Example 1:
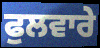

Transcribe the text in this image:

ਫੁਲਵਾਰੇ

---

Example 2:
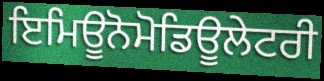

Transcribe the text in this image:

ਇਮਿਊਨੋਮੋਡਿਊਲੇਟਰੀ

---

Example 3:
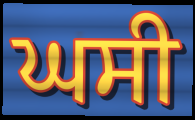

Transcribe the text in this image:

ਘਸੀ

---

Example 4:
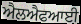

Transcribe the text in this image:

ਐਲਐਫਆਈ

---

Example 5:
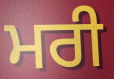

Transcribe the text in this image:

ਮਰੀ